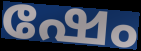
ഷേം